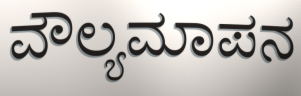
ವೌಲ್ಯಮಾಪನ